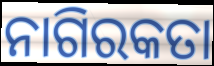
ନାଗିରକତା